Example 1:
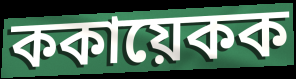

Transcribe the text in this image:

ককায়েকক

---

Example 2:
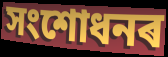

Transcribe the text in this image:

সংশোধনৰ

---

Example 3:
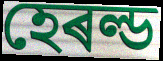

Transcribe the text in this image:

হেৰল্ড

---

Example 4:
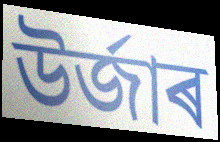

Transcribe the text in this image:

উৰ্জাৰ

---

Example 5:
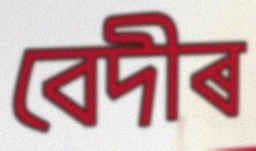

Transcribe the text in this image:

বেদীৰ